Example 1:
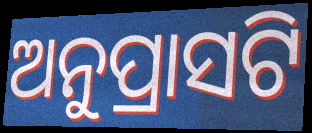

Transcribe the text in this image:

ଅନୁପ୍ରାସଟି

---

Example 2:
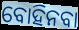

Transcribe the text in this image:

ବୋହିନବା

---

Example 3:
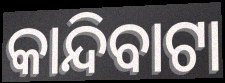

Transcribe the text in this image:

କାନ୍ଦିବାଟା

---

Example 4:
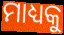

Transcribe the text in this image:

ମାଧ୍ୟକୁ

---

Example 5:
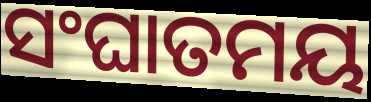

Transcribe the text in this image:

ସଂଘାତମୟ